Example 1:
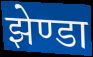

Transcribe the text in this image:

झेण्डा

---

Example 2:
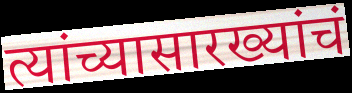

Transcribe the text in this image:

त्यांच्यासारख्यांचं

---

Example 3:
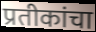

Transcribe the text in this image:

प्रतीकांचा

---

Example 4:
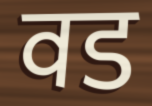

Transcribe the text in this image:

वड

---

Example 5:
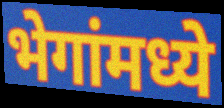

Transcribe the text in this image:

भेगांमध्ये